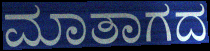
ಮಾತಾಗದ